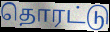
தொரட்டு